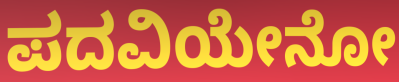
ಪದವಿಯೇನೋ